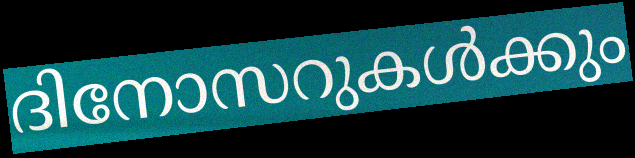
ദിനോസറുകൾക്കും